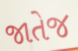
જાતેજ